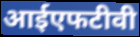
आईएफटीवी